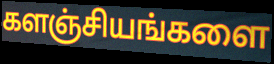
களஞ்சியங்களை